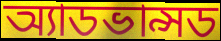
অ্যাডভান্সড